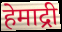
हेमाद्री